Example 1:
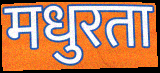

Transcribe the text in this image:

मधुरता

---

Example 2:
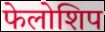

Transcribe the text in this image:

फेलोशिप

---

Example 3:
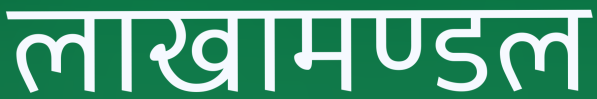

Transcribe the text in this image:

लाखामण्डल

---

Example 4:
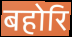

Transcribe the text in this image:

बहोरि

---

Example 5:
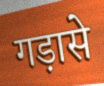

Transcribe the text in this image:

गड़ासे